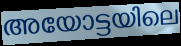
അയോട്ടയിലെ